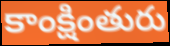
కాంక్షింతురు